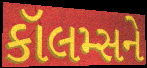
કૉલમ્સને